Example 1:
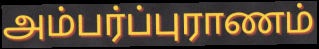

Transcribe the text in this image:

அம்பர்ப்புராணம்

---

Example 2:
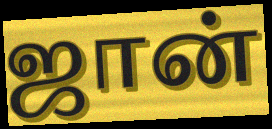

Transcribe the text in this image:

ஜான்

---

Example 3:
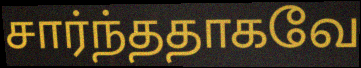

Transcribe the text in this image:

சார்ந்ததாகவே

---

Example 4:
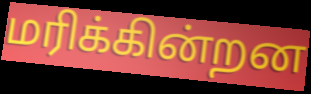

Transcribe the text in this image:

மரிக்கின்றன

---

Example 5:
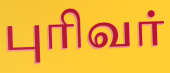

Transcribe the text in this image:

புரிவர்